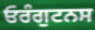
ਓਰੰਗੁਟਨਸ